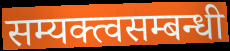
सम्यक्त्वसम्बन्धी